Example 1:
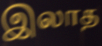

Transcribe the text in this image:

இலாத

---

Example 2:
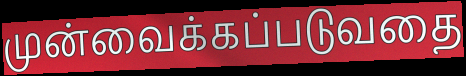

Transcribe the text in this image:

முன்வைக்கப்படுவதை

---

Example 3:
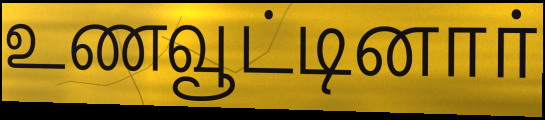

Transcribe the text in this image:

உணவூட்டினார்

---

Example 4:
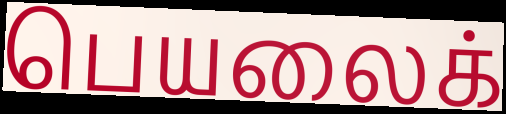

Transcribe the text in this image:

பெயலைக்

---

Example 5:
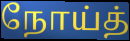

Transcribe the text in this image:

நோய்த்